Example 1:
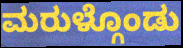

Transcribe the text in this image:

ಮರುಳ್ಗೊಂಡು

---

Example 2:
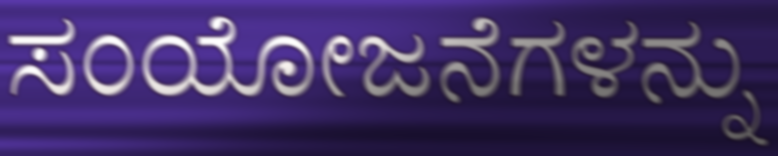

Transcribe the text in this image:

ಸಂಯೋಜನೆಗಳನ್ನು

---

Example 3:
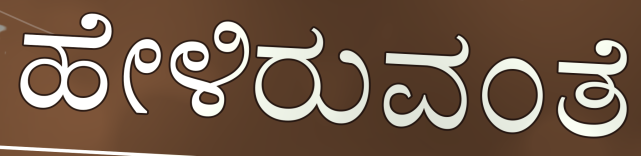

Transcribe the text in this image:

ಹೇಳಿರುವಂತೆ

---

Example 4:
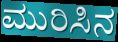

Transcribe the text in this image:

ಮುರಿಸಿನ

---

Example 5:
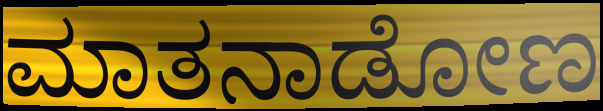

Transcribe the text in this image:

ಮಾತನಾಡೋಣ